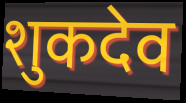
शुकदेव